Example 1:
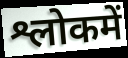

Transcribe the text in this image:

श्लोकमें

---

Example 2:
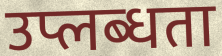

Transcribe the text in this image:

उप्लब्धता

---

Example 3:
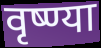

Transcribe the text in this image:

वृष्ण्या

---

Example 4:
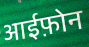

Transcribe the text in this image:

आईफ़ोन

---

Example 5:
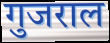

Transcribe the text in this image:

गुजराल